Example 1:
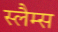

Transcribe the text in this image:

स्लैम्स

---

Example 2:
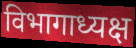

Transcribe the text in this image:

विभागाध्यक्ष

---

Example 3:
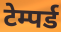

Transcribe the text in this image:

टेम्पर्ड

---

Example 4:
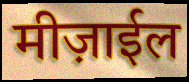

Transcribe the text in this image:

मीज़ाईल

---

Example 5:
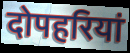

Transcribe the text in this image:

दोपहरियां